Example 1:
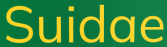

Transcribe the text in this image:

Suidae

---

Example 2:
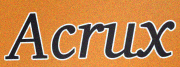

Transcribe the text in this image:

Acrux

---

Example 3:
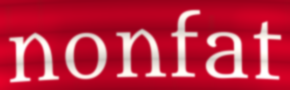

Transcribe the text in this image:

nonfat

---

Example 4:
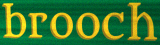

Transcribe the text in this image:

brooch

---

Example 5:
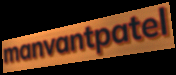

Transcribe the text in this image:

manvantpatel